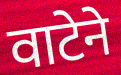
वाटेने